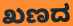
ಖಣದ